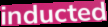
inducted